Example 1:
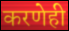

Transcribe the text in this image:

करणेही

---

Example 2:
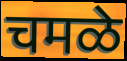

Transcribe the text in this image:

चमळे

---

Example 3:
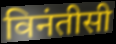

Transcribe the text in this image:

विनंतीसी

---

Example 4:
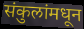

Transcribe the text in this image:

संकुलांमधून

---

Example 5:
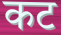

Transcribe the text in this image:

कट